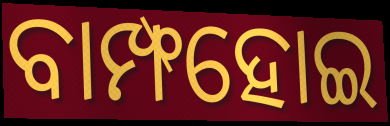
ବାମ୍ଫହୋଇ